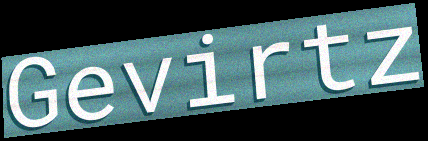
Gevirtz